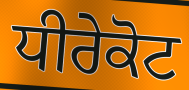
ਧੀਰੇਕੋਟ